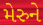
મેરુને